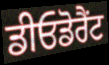
ਡੀਓਡੋਰੈਂਟ